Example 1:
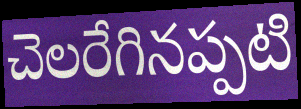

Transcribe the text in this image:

చెలరేగినప్పటి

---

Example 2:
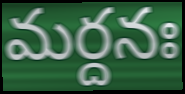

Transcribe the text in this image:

మర్దనః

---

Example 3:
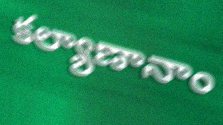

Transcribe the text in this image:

కల్యాణానాం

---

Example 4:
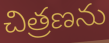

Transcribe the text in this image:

చిత్రణను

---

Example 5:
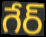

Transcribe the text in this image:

గేర్